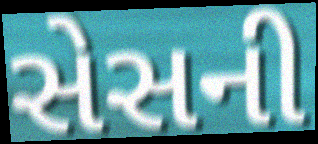
સેસની